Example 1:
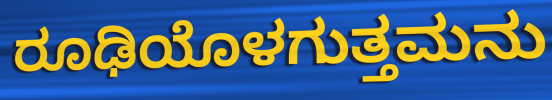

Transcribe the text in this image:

ರೂಢಿಯೊಳಗುತ್ತಮನು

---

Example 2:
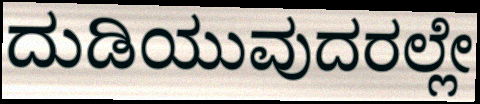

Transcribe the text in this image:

ದುಡಿಯುವುದರಲ್ಲೇ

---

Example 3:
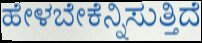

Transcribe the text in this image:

ಹೇಳಬೇಕೆನ್ನಿಸುತ್ತಿದೆ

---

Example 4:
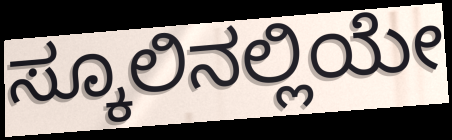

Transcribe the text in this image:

ಸ್ಕೂಲಿನಲ್ಲಿಯೇ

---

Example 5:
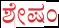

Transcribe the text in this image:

ಶೇಷಂ